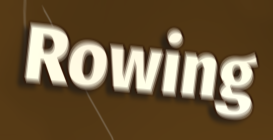
Rowing